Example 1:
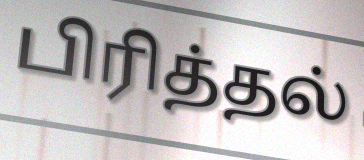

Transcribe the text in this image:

பிரித்தல்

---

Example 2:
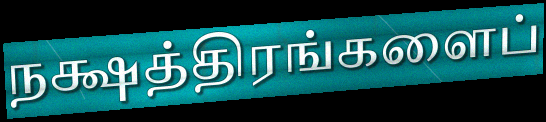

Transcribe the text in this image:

நக்ஷத்திரங்களைப்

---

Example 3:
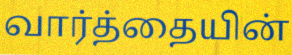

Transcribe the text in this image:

வார்த்தையின்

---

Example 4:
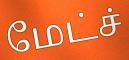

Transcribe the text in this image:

மேட்ச்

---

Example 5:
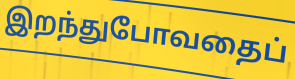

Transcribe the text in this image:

இறந்துபோவதைப்